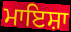
ਮਾਇਸ਼ਾ